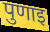
पुणाइ